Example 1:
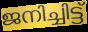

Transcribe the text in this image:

ജനിച്ചിട്ട്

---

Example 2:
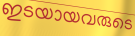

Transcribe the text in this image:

ഇടയായവരുടെ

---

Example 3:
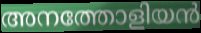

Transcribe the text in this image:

അനത്തോളിയൻ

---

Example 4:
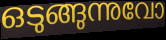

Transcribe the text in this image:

ഒടുങ്ങുന്നുവോ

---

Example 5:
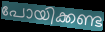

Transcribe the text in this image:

പോയിക്കണ്ട